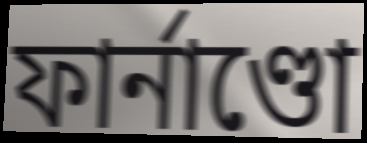
ফাৰ্নাণ্ডো